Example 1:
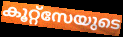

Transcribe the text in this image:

കൂറ്റ്സേയുടെ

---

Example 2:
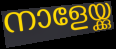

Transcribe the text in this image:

നാളേയ്ക്കു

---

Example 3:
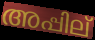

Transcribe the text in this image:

അപ്പില്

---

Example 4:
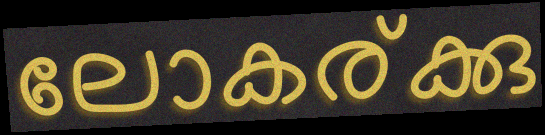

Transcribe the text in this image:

ലോകര്ക്കു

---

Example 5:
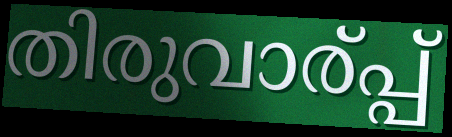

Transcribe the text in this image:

തിരുവാര്പ്പ്